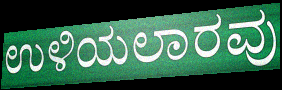
ಉಳಿಯಲಾರವು